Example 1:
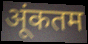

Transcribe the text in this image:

अूंकतम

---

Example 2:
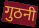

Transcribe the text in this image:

गुठनी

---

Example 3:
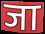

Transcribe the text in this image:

जा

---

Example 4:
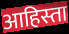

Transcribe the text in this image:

आहिस्‍ता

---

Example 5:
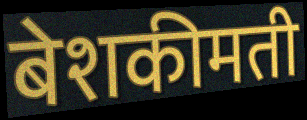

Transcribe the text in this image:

बेशकीमती